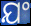
ଯଂ